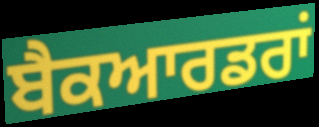
ਬੈਕਆਰਡਰਾਂ